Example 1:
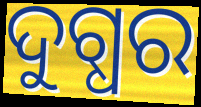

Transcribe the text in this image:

ଦୁଗ୍ଧର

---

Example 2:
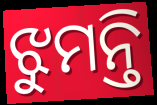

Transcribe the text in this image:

ଝୁମନ୍ତି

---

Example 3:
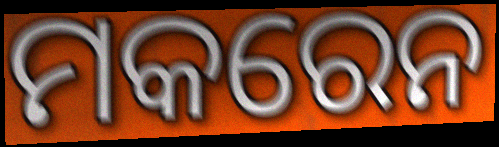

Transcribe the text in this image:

ମକରେନ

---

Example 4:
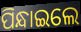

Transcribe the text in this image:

ପିନ୍ଧାଇଲେ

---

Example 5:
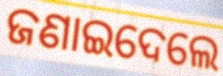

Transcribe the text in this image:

ଜଣାଇଦେଲେ